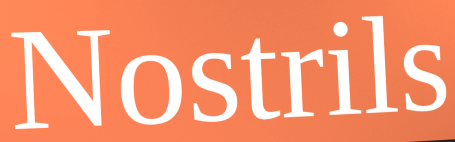
Nostrils